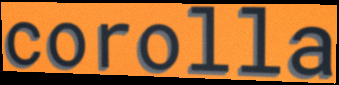
corolla